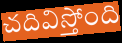
చదివిస్తోంది